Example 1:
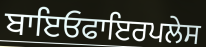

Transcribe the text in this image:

ਬਾਇਓਫਾਇਰਪਲੇਸ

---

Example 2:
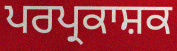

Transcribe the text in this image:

ਪਰਪ੍ਰਕਾਸ਼ਕ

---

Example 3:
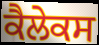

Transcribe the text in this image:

ਕੈਲੇਕਸ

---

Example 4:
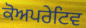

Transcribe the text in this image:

ਕੋਅਪਰੇਟਿਵ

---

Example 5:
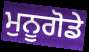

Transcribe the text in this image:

ਮੁਨੂਗੋਡੇ